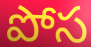
పోస